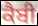
ਕੈਬੀ